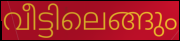
വീട്ടിലെങ്ങും